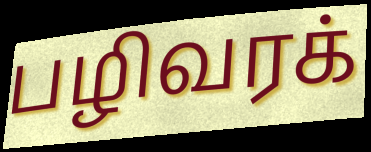
பழிவரக்